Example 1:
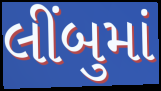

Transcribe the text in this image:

લીંબુમાં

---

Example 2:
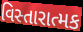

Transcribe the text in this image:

વિસ્તારાત્મક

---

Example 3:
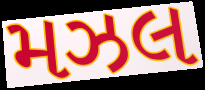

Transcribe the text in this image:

મઝલ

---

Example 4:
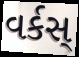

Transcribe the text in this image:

વર્કસ્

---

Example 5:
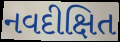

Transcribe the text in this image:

નવદીક્ષિત